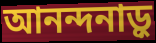
আনন্দনাড়ু